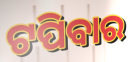
ଟପିବାର